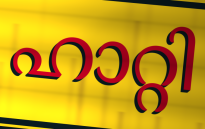
ഹാറ്റി